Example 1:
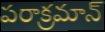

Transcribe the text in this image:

పరాక్రమాన్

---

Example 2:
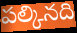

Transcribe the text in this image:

పల్కినది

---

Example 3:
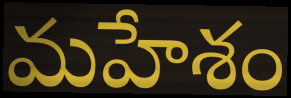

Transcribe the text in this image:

మహేశం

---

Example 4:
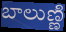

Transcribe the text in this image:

బాలుణ్ణి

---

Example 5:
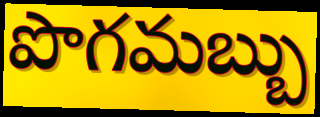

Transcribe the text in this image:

పొగమబ్బు